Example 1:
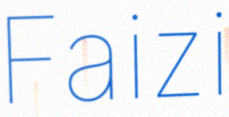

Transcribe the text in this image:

Faizi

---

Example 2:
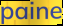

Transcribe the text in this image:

paine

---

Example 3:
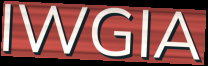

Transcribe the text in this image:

IWGIA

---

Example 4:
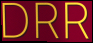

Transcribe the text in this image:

DRR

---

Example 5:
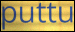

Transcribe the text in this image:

puttu